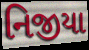
નિજીયા